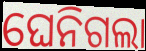
ଘେନିଗଲା